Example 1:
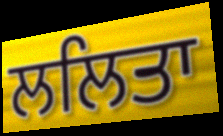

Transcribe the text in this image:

ਲਲਿਤਾ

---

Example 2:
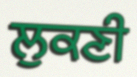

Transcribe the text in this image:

ਲੁਕਣੀ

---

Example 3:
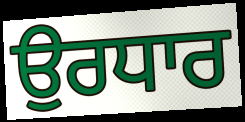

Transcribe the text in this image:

ਉਰਧਾਰ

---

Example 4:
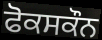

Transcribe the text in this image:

ਫੋਕਸਕੌਨ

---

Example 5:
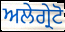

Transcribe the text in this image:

ਅਲੇਗ੍ਰੇਟੋ